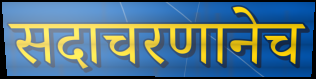
सदाचरणानेच